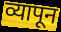
व्यापून